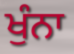
ਖੁੰਨਾ